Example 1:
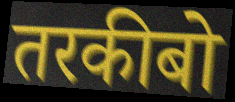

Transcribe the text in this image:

तरकीबो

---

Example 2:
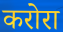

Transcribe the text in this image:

करोरा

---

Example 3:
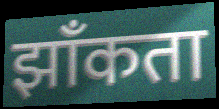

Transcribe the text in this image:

झाँकता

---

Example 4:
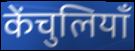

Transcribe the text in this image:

केंचुलियाँ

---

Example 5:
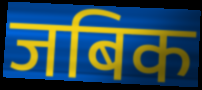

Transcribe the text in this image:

जबिक